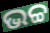
ଭଚ୍ଚ